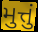
મુત્તું